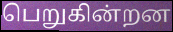
பெறுகின்றன